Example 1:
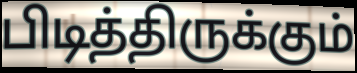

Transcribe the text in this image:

பிடித்திருக்கும்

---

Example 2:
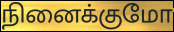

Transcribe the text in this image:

நினைக்குமோ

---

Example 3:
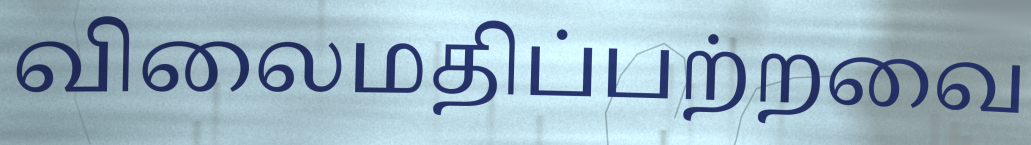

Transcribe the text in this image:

விலைமதிப்பற்றவை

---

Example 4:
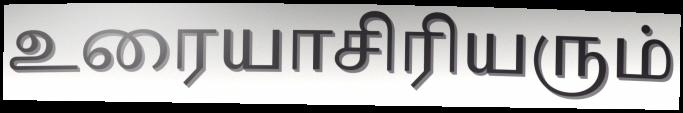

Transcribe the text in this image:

உரையாசிரியரும்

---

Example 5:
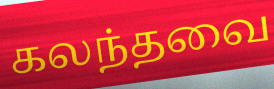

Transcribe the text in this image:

கலந்தவை